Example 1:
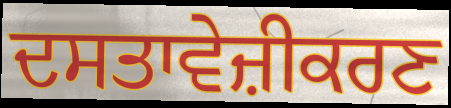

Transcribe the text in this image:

ਦਸਤਾਵੇਜ਼ੀਕਰਣ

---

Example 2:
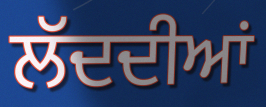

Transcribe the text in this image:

ਲੱਦਦੀਆਂ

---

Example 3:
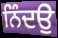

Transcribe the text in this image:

ਨਿੰਦਉ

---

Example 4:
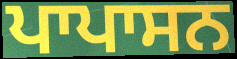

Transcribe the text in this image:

ਪਾਪਾਸਨ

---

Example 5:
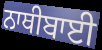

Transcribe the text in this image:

ਨਾਥੀਬਾਈ